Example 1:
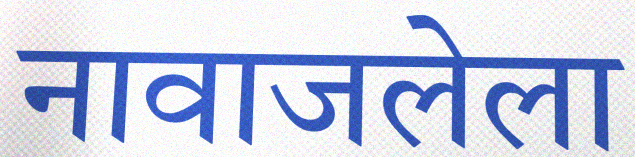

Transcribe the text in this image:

नावाजलेला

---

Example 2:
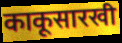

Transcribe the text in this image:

काकूसारखी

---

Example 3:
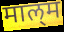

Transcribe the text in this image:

माल्म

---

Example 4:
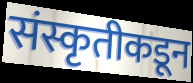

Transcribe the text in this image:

संस्कृतीकडून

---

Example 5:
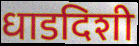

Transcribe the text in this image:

धाडदिशी